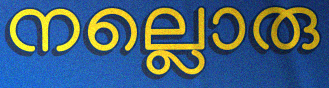
നല്ലൊരു